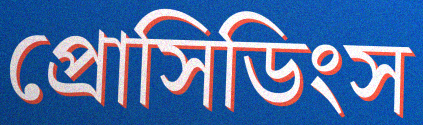
প্রোসিডিংস